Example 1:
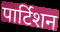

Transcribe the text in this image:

पार्टिशन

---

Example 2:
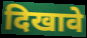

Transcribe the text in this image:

दिखावे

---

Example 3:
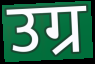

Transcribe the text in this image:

उग्र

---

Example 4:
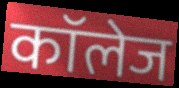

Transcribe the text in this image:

कॉलेज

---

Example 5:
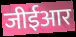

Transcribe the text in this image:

जीईआर